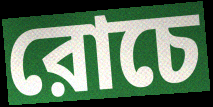
রোচে